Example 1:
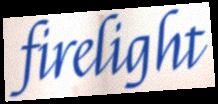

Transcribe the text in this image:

firelight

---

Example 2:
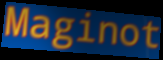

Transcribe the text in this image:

Maginot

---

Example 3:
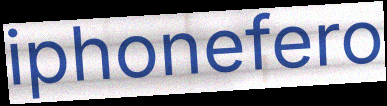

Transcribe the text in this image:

iphonefero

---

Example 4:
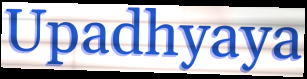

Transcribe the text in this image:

Upadhyaya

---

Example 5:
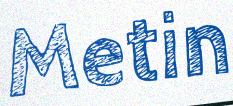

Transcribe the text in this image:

Metin